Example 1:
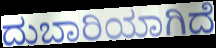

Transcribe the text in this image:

ದುಬಾರಿಯಾಗಿದೆ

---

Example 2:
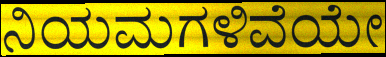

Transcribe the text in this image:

ನಿಯಮಗಳಿವೆಯೇ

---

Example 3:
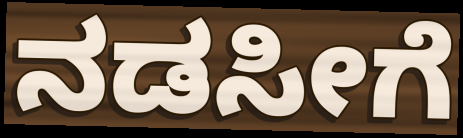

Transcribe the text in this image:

ನಡಸೀಗೆ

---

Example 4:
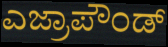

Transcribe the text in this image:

ಎಜ್ರಾಪೌಂಡ್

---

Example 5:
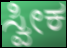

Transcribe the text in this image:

ಸ್ವೀಕ